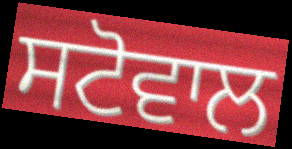
ਸਟੋਵਾਲ